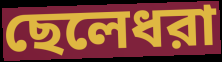
ছেলেধরা